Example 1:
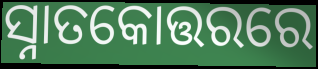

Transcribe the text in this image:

ସ୍ନାତକୋତ୍ତରରେ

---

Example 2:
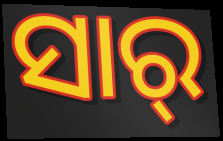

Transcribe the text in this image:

ସାର୍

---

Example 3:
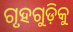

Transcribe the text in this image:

ଗୃହଗୁଡ଼ିକୁ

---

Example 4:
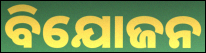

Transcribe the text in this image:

ବିଯୋଜନ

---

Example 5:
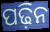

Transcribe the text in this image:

ପଢ଼ିନ